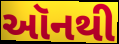
ઑનથી